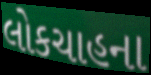
લોકચાહના